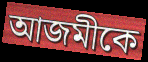
আজমীকে